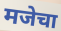
मजेचा